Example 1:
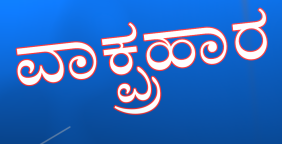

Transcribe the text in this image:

ವಾಕ್ಪ್ರಹಾರ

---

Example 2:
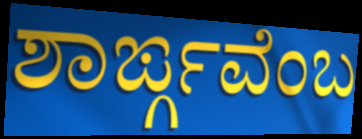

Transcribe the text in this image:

ಶಾರ್ಙ್ಗವೆಂಬ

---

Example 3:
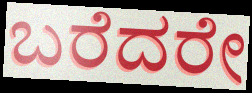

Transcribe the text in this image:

ಬರೆದರೇ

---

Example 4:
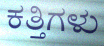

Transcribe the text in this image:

ಕತ್ತಿಗಳು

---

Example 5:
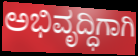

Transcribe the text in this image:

ಅಭಿವೃದ್ಧಿಗಾಗಿ